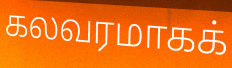
கலவரமாகக்